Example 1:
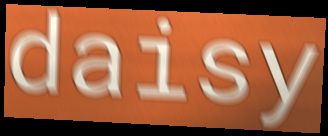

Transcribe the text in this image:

daisy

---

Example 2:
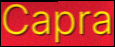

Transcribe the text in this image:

Capra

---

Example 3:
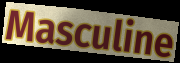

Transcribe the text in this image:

Masculine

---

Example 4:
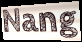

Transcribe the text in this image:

Nang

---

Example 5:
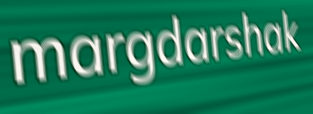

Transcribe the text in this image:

margdarshak